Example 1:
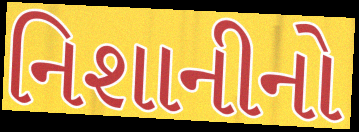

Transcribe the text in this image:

નિશાનીનો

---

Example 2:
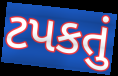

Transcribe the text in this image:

ટપકતું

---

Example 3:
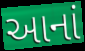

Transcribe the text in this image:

આનાં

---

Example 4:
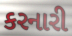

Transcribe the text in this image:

કરનારી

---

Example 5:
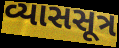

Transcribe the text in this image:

વ્યાસસૂત્ર